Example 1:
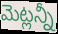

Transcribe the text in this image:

మెట్లన్నీ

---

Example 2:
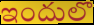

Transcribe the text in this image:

ఇందులొ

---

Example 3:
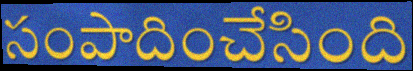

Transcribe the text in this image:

సంపాదించేసింది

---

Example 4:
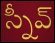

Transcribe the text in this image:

స్నీవ్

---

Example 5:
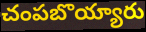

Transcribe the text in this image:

చంపబొయ్యారు